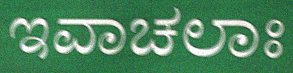
ಇವಾಚಲಾಃ